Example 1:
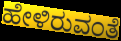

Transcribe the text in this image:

ಹೇಳಿರುವಂತೆ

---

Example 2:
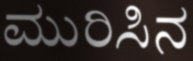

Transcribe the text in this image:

ಮುರಿಸಿನ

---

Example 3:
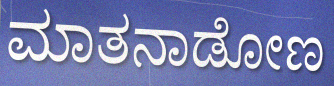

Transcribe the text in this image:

ಮಾತನಾಡೋಣ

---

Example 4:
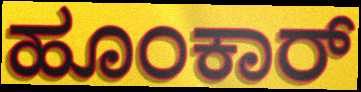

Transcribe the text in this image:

ಹೂಂಕಾರ್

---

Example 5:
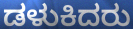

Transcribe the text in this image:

ಡಳುಕಿದರು